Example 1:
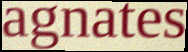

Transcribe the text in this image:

agnates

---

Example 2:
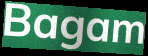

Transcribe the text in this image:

Bagam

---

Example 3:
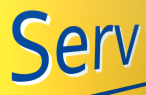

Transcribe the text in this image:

Serv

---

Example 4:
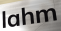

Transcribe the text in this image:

lahm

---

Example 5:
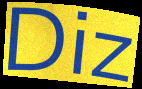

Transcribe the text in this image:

Diz